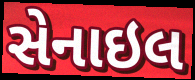
સેનાઇલ